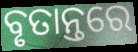
ବୃତାନ୍ତରେ